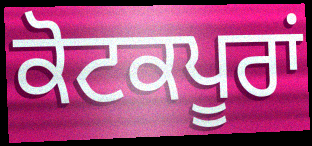
ਕੋਟਕਪੂਰਾਂ